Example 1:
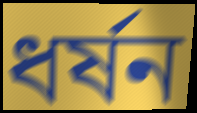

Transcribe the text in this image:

ধর্ষন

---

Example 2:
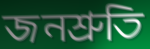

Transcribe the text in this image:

জনশ্রুতি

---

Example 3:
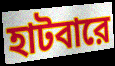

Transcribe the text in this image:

হাটবারে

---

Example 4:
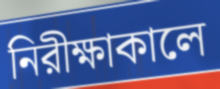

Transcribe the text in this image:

নিরীক্ষাকালে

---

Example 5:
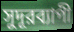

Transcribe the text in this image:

সুদূরব্যাপী